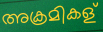
അക്രമികള്